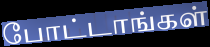
போட்டாங்கள்